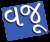
વજૂ